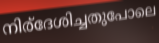
നിര്ദേശിച്ചതുപോലെ